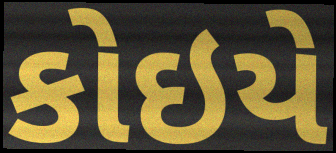
કોઇયે